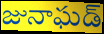
జునాఘడ్